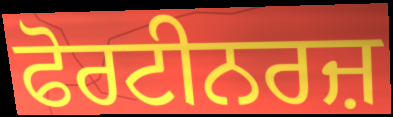
ਫੋਰਟੀਨਰਜ਼